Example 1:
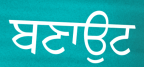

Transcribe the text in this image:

ਬਣਾਉਟ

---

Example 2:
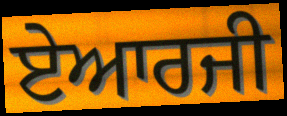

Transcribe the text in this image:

ਏਆਰਜੀ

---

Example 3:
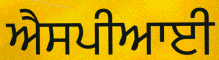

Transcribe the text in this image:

ਐਸਪੀਆਈ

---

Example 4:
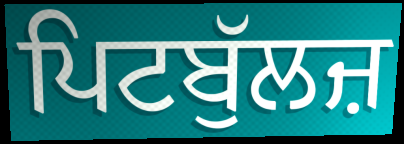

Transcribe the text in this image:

ਪਿਟਬੁੱਲਜ਼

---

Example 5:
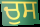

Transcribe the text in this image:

ਚੁਸ